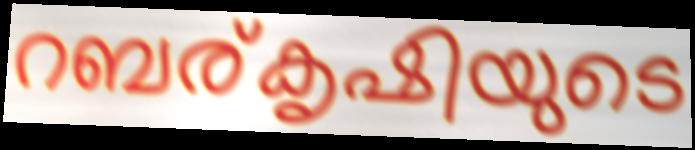
റബര്കൃഷിയുടെ